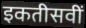
इकतीसवीं